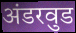
अंडरवुड